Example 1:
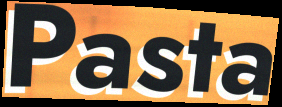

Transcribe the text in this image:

Pasta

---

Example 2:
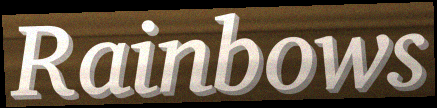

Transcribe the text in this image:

Rainbows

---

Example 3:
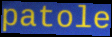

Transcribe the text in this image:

patole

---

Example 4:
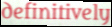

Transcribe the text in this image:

definitively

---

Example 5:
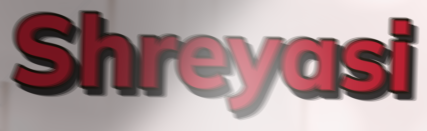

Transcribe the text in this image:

Shreyasi